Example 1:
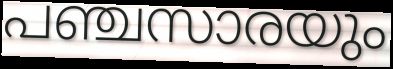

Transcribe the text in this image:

പഞ്ചസാരയും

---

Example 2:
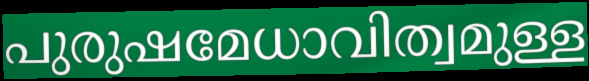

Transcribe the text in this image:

പുരുഷമേധാവിത്വമുള്ള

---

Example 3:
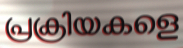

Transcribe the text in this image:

പ്രക്രിയകളെ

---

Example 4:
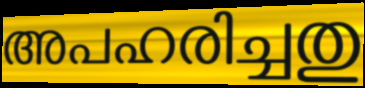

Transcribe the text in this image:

അപഹരിച്ചതു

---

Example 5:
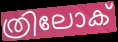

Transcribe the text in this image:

ത്രിലോക്